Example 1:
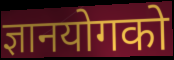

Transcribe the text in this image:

ज्ञानयोगको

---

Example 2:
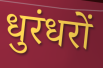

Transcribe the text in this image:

धुरंधरों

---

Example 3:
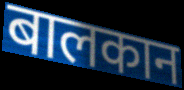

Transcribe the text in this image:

बालकान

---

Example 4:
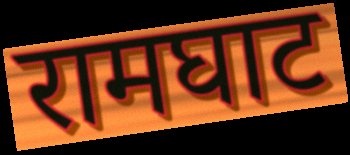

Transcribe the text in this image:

रामघाट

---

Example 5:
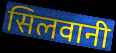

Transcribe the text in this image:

सिलवानी